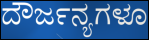
ದೌರ್ಜನ್ಯಗಳೂ